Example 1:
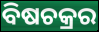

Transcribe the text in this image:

ବିଷଚକ୍ରର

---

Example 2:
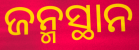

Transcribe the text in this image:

ଜନ୍ମସ୍ଥାନ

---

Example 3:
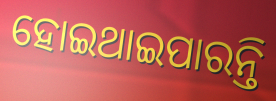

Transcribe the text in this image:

ହୋଇଥାଇପାରନ୍ତି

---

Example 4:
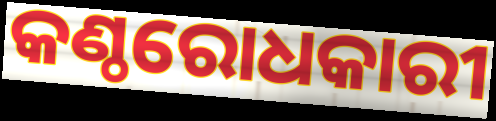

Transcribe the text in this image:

କଣ୍ଠରୋଧକାରୀ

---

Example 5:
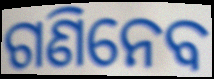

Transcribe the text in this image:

ଗଣିନେବ